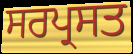
ਸਰਪ੍ਰਸਤ